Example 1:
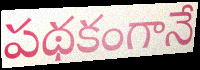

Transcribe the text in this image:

పథకంగానే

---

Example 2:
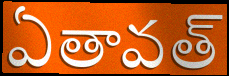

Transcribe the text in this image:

ఏతావత్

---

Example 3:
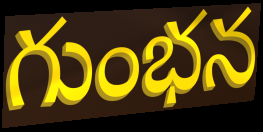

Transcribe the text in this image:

గుంభన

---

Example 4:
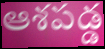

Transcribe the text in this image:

ఆశపడ్డ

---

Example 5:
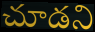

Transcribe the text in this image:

చూడని